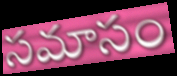
సమాసం